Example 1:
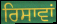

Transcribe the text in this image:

ਰਿਸਾਵਾਂ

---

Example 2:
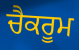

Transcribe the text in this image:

ਚੈਕਰੂਮ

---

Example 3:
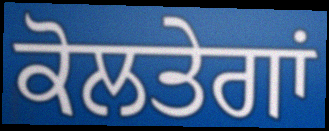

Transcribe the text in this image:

ਕੋਲਤੇਗਾਂ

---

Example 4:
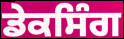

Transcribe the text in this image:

ਡੇਕਸਿੰਗ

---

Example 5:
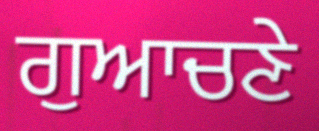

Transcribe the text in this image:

ਗੁਆਚਣੇ